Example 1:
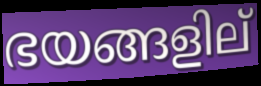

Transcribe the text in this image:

ഭയങ്ങളില്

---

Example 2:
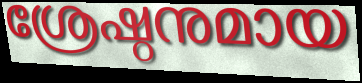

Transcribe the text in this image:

ശ്രേഷ്ഠനുമായ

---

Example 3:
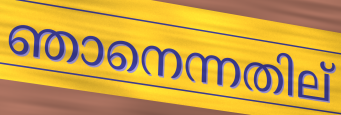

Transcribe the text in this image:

ഞാനെന്നതില്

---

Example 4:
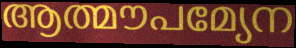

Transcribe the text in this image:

ആത്മൗപമ്യേന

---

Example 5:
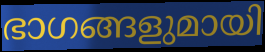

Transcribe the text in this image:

ഭാഗങ്ങളുമായി